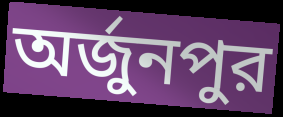
অর্জুনপুর